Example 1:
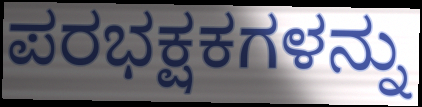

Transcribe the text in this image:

ಪರಭಕ್ಷಕಗಳನ್ನು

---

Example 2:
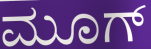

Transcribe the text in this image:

ಮೂಗ್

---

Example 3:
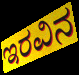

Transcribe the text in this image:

ಇರವಿನ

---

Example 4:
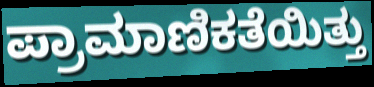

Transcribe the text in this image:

ಪ್ರಾಮಾಣಿಕತೆಯಿತ್ತು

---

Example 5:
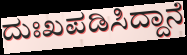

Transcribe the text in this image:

ದುಃಖಪಡಿಸಿದ್ದಾನೆ